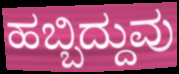
ಹಬ್ಬಿದ್ದುವು